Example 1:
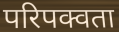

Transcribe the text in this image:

परिपक्वता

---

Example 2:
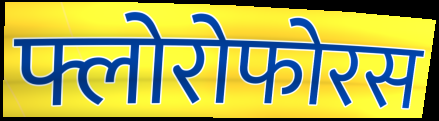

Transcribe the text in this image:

फ्लोरोफोरस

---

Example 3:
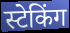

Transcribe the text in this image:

स्टेकिंग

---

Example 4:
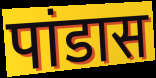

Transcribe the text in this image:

पांडास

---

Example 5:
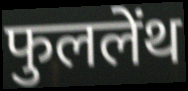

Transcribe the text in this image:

फुललेंथ